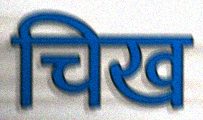
चिख